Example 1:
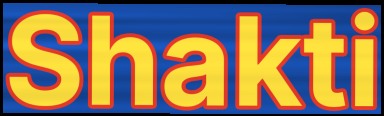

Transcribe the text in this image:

Shakti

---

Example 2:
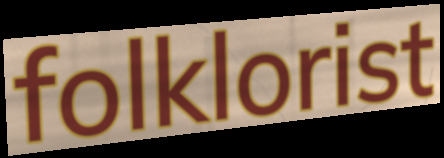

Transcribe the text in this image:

folklorist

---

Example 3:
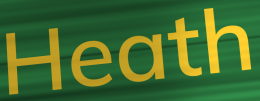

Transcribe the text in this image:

Heath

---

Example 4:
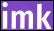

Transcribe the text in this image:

imk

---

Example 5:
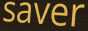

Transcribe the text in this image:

saver